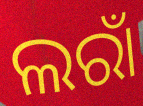
ଲରାଁ